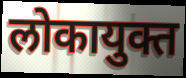
लोकायुक्त